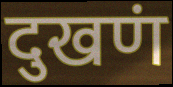
दुखणं